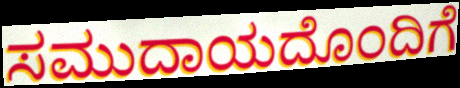
ಸಮುದಾಯದೊಂದಿಗೆ